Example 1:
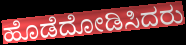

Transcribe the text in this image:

ಹೊಡೆದೋಡಿಸಿದರು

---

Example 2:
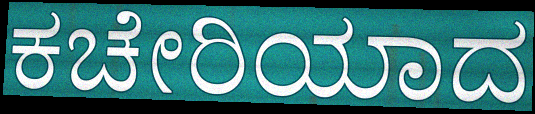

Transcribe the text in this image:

ಕಚೇರಿಯಾದ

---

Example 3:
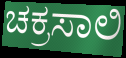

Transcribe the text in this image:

ಚಕ್ರಸಾಲಿ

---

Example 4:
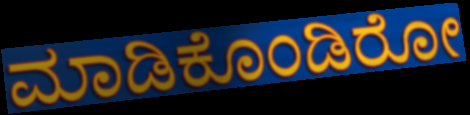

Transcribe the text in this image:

ಮಾಡಿಕೊಂಡಿರೋ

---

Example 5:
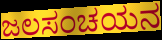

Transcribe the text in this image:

ಜಲಸಂಚಯನ